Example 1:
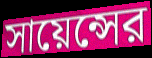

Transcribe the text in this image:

সায়েন্সের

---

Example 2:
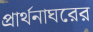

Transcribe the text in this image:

প্রার্থনাঘরের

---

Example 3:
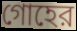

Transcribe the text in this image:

গোহের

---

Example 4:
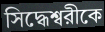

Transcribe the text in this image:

সিদ্ধেশ্বরীকে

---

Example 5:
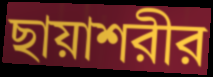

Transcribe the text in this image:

ছায়াশরীর